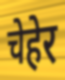
चेहेर